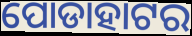
ପୋଡାହାଟର